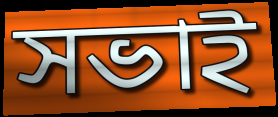
সভাই